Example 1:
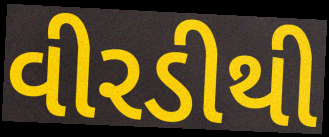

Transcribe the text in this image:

વીરડીથી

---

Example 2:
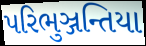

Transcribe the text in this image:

પરિભુઞ્જન્તિયા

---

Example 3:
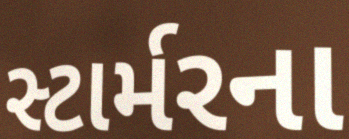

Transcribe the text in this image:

સ્ટાર્મરના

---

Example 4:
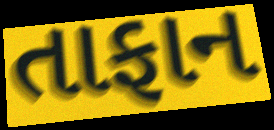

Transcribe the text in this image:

તાફાન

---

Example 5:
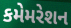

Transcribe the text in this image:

કમેમરેશન